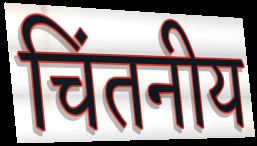
चिंतनीय